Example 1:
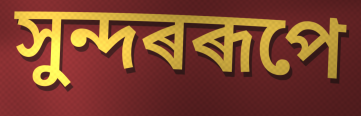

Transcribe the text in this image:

সুন্দৰৰূপে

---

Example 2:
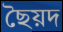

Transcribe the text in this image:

ছৈয়দ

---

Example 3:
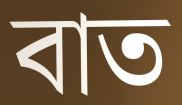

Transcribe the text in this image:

বাত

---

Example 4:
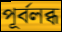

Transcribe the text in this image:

পূৰ্বলব্ধ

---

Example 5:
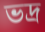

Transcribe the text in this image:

ভদ্ৰ